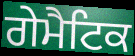
ਗੇਮੈਟਿਕ